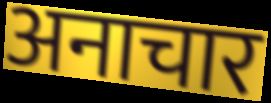
अनाचार